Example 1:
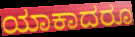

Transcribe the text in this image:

ಯಾಕಾದರೂ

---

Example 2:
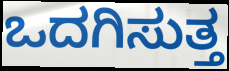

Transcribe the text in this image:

ಒದಗಿಸುತ್ತ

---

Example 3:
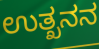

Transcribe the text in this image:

ಉತ್ಖನನ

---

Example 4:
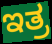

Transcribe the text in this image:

ಇತ್ರ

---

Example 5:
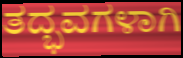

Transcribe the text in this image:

ತದ್ಭವಗಳಾಗಿ